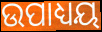
ଉପାଧ୍ୟୟ